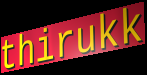
thirukk